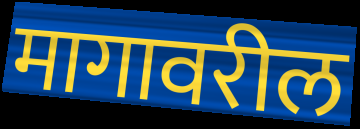
मागावरील